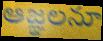
ఆజ్ఞలనూ